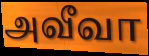
அவீவா